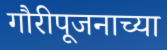
गौरीपूजनाच्या